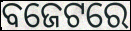
ବଜେଟରେ